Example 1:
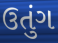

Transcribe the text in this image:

ઉતુંગ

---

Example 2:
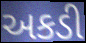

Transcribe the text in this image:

અકડી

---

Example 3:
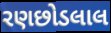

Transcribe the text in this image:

રણછોડલાલ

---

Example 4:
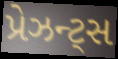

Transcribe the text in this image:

પ્રેઝન્ટ્સ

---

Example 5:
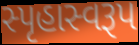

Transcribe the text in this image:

સ્પૃહાસ્વરૂપ